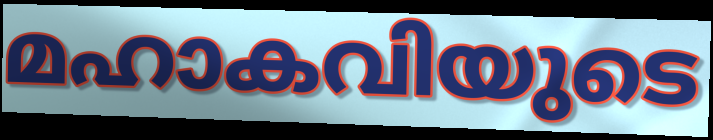
മഹാകവിയുടെ